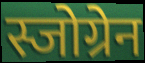
स्जोग्रेन